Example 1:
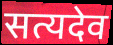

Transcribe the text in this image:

सत्यदेव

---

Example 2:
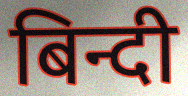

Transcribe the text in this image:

बिन्दी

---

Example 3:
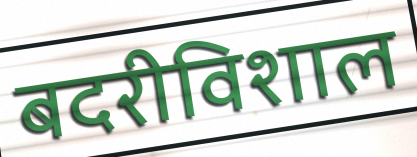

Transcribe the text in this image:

बदरीविशाल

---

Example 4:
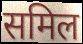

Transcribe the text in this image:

समिल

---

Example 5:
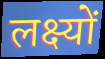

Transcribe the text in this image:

लक्ष्यों